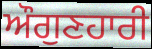
ਔਗੁਣਹਾਰੀ